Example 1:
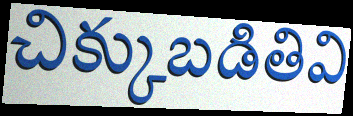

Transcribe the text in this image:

చిక్కుబడితివి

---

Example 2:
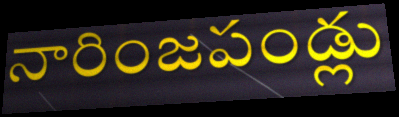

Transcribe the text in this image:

నారింజపండ్లు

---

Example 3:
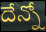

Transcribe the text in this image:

దేన్నో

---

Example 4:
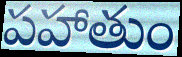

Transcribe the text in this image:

పహాతుం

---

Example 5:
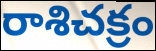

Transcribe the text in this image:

రాశిచక్రం